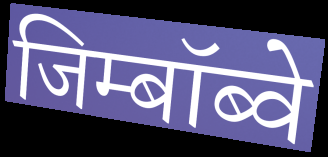
जिम्बॉब्वे